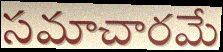
సమాచారమే